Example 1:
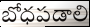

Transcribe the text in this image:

బోధపడాలి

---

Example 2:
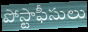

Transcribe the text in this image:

పోస్టాఫీసులు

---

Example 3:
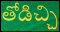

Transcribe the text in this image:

తోడిచ్చి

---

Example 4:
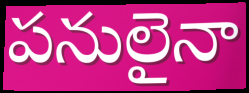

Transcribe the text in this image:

పనులైనా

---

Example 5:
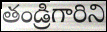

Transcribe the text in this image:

తండ్రిగారిని